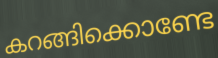
കറങ്ങിക്കൊണ്ടേ